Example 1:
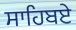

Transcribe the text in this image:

ਸਾਹਿਬਏ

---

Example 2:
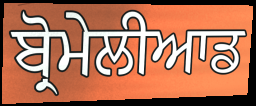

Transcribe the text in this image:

ਬ੍ਰੋਮੇਲੀਆਡ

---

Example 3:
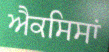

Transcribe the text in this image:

ਐਕਸਿਸਾਂ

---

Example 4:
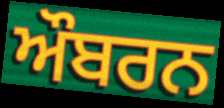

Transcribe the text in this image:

ਔਬਰਨ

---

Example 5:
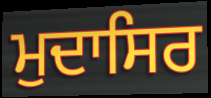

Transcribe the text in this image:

ਮੁਦਾਸਿਰ